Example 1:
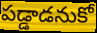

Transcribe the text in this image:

పడ్డాడనుకో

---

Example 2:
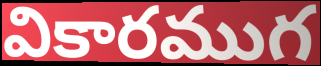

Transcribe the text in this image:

వికారముగ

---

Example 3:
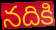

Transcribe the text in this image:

నదికి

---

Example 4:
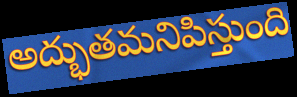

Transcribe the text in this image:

అద్భుతమనిపిస్తుంది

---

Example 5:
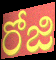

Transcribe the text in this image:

రోజి